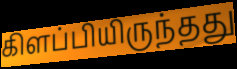
கிளப்பியிருந்தது